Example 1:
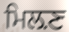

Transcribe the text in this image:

ਮਿਲ਼ਣ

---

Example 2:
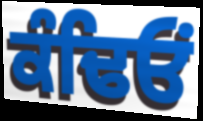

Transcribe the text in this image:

ਕੰਢਿਓਂ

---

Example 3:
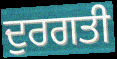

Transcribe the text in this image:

ਦੁਰਗਤੀ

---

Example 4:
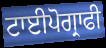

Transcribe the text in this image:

ਟਾਈਪੋਗ੍ਰਾਫੀ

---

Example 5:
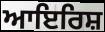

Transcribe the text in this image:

ਆਇਰਿਸ਼